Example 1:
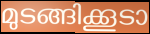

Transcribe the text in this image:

മുടങ്ങിക്കൂടാ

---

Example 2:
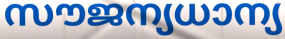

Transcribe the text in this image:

സൗജന്യധാന്യ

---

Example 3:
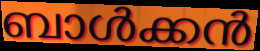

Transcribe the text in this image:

ബാൾക്കൻ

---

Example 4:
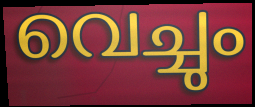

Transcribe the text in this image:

വെച്ചും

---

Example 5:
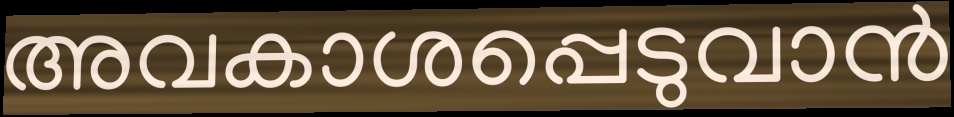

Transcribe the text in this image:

അവകാശപ്പെടുവാൻ